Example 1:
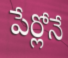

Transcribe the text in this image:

పేర్లోనే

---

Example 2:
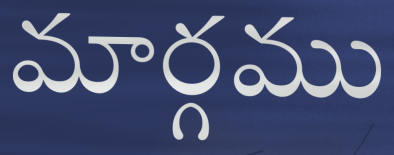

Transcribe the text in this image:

మార్గము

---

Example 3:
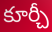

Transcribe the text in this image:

కూర్చీ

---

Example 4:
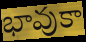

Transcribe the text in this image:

భావుకా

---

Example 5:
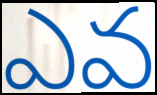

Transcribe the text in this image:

ఎవ